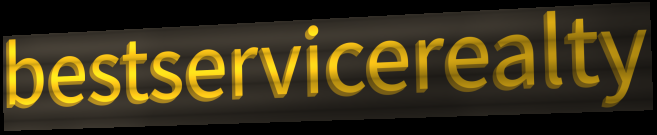
bestservicerealty